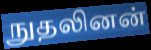
நுதலினன்